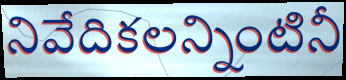
నివేదికలన్నింటినీ